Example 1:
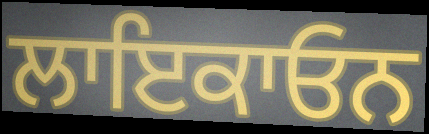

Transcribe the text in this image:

ਲਾਇਕਾਓਨ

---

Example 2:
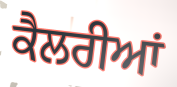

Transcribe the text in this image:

ਕੈਲਰੀਆਂ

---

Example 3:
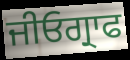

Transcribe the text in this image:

ਜੀਓਗ੍ਰਾਫ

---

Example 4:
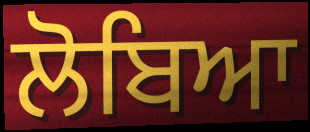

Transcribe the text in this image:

ਲੋਬਿਆ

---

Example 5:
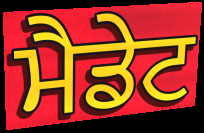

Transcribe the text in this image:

ਮੈਡੇਟ